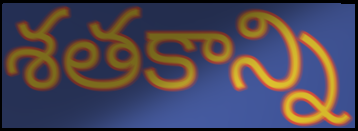
శతకాన్ని